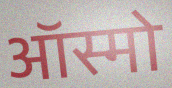
ऑस्मो